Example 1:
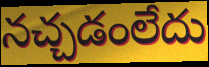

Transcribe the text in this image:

నచ్చడంలేదు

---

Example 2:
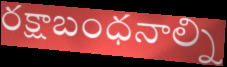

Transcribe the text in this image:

రక్షాబంధనాల్ని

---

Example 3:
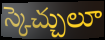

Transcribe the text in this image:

స్కెచ్చులూ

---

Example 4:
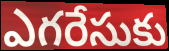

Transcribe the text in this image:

ఎగరేసుకు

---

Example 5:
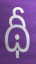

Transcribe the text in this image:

థీ